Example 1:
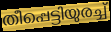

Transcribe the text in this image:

തീപ്പെട്ടിയുരച്ച്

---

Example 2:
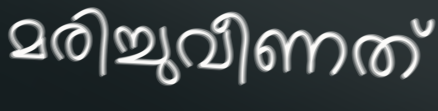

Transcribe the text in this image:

മരിച്ചുവീണത്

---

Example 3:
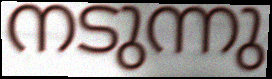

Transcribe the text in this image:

നടുന്നു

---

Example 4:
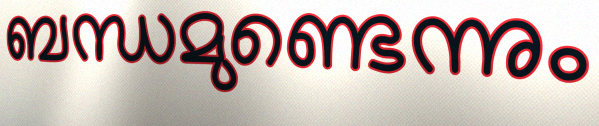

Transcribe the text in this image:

ബന്ധമുണ്ടെന്നും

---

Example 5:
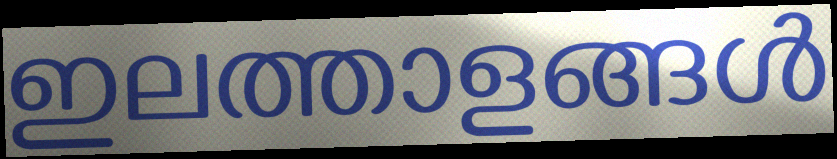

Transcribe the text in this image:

ഇലത്താളങ്ങൾ